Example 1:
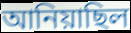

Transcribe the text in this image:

আনিয়াছিল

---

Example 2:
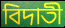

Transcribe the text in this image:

বিদাতী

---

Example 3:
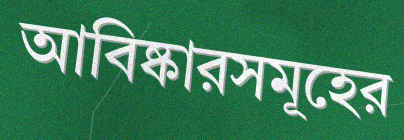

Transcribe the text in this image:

আবিষ্কারসমূহের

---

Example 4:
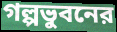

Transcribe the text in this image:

গল্পভুবনের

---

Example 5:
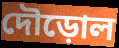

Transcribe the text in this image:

দৌড়োল